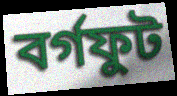
বর্গফুট